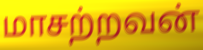
மாசற்றவன்